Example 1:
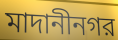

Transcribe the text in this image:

মাদানীনগর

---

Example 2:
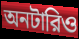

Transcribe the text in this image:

অনটারিও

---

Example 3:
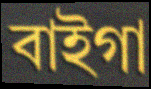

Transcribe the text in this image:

বাইগা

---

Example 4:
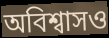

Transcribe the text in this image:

অবিশ্বাসও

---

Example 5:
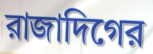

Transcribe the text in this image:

রাজাদিগের